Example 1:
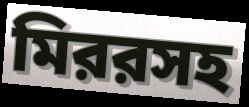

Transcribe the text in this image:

মিররসহ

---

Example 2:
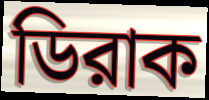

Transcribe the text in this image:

ডিরাক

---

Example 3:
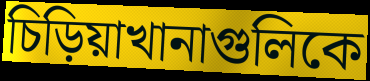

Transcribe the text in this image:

চিড়িয়াখানাগুলিকে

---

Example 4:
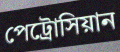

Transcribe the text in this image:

পেট্রোসিয়ান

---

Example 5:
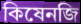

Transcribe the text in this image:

কিষেনজি